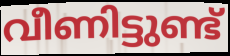
വീണിട്ടുണ്ട്